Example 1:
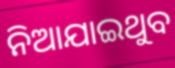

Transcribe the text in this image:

ନିଆଯାଇଥୁବ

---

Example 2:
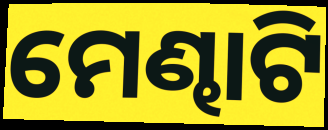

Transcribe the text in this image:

ମେଣ୍ଢାଟି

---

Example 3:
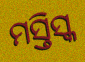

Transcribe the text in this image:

ମସ୍ତିସ୍କ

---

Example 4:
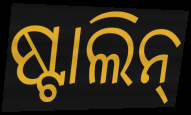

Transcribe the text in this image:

ଷ୍ଟାଲିନ୍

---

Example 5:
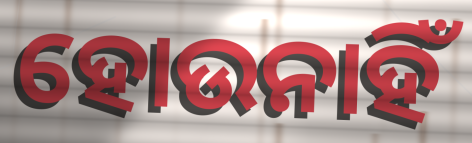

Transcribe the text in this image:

ହୋଉନାହିଁ